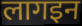
लागइन